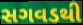
સગવડથી